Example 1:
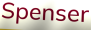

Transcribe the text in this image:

Spenser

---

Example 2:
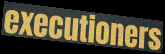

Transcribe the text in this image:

executioners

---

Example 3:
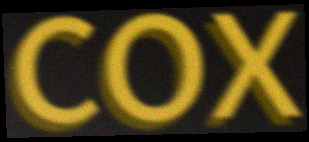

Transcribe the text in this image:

cox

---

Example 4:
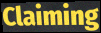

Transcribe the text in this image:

Claiming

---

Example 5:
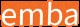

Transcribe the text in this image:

emba